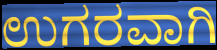
ಉಗರವಾಗಿ